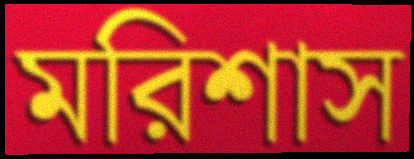
মরিশাস